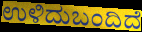
ಉಳಿದುಬಂದಿದೆ